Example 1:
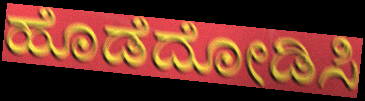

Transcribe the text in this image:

ಹೊಡೆದೋಡಿಸಿ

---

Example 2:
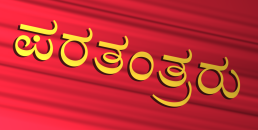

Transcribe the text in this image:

ಪರತಂತ್ರರು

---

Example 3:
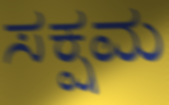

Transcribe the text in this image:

ಸಕ್ಷಮ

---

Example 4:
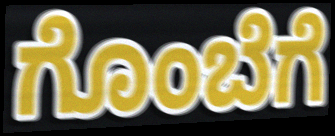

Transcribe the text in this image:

ಗೊಂಬೆಗೆ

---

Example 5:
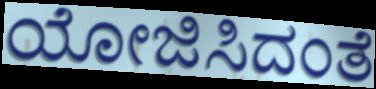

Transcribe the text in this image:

ಯೋಜಿಸಿದಂತೆ